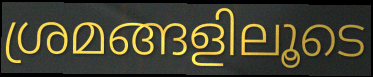
ശ്രമങ്ങളിലൂടെ